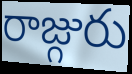
రాజ్గురు